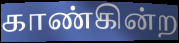
காண்கின்ற